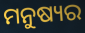
ମନୁଷ୍ୟର